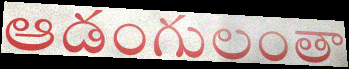
ఆడంగులంతా